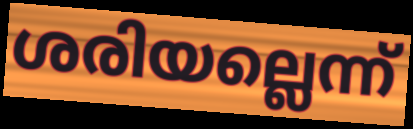
ശരിയല്ലെന്ന്